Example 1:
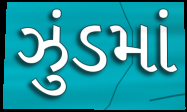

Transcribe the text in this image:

ઝુંડમાં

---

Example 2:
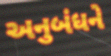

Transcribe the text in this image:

અનુબંધને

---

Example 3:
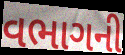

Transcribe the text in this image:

વભાગની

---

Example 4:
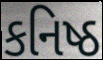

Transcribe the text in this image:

કનિષ્ઠ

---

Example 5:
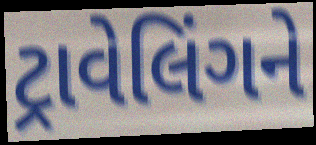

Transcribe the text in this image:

ટ્રાવેલિંગને